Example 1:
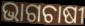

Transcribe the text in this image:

ଭାଗଚାଷୀ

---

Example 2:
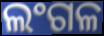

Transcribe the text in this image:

ଲଂଗଳ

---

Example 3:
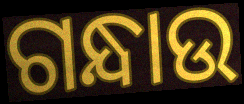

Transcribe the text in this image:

ଗନ୍ଧାଉ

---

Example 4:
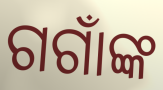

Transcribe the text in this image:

ଗଗାଁଙ୍କ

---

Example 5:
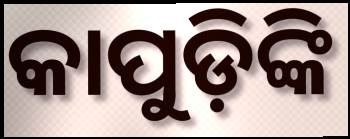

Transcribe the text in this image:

କାପୁଡ଼ିଙ୍କି